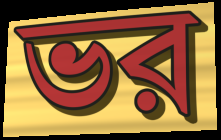
ভর